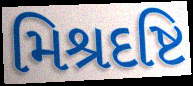
મિશ્રદષ્ટિ